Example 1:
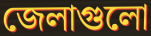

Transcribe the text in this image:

জেলাগুলো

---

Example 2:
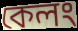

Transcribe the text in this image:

কেলং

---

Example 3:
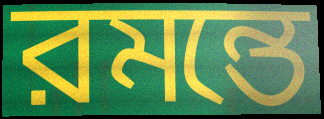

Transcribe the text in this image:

রমন্তে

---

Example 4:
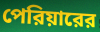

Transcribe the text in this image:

পেরিয়ারের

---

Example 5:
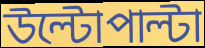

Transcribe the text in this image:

উল্টোপাল্টা